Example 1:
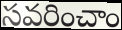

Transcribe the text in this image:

సవరించాం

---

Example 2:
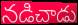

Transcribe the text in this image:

నడిచాడు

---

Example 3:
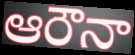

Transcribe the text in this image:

ఆరౌనా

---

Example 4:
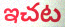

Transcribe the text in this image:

ఇచట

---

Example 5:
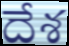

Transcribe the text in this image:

దేశ